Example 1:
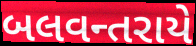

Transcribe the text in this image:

બલવન્તરાયે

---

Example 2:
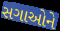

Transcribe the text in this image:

સગાઓને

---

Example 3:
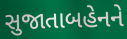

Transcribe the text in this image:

સુજાતાબહેનને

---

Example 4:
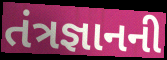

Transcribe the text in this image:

તંત્રજ્ઞાનની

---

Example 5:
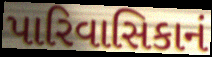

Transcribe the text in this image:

પારિવાસિકાનં